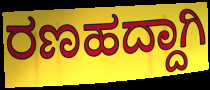
ರಣಹದ್ದಾಗಿ